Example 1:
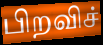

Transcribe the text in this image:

பிறவிச்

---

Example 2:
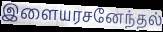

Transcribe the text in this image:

இளையரசனேந்தல்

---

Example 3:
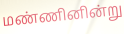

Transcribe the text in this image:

மண்ணினின்று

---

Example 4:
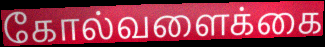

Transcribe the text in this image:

கோல்வளைக்கை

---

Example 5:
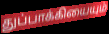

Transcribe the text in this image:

துப்பாக்கியையும்